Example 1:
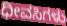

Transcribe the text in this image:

ಧೀವಸಿಗಳು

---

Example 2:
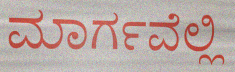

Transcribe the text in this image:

ಮಾರ್ಗವೆಲ್ಲಿ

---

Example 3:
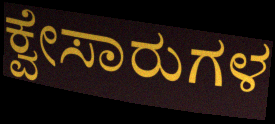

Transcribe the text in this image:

ಕ್ವೇಸಾರುಗಳ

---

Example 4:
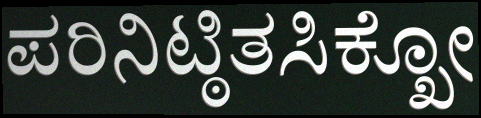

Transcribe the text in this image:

ಪರಿನಿಟ್ಠಿತಸಿಕ್ಖೋ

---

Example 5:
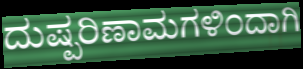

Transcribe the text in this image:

ದುಷ್ಪರಿಣಾಮಗಳಿಂದಾಗಿ